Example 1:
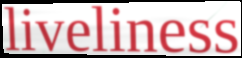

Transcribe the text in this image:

liveliness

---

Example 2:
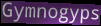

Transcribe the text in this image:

Gymnogyps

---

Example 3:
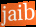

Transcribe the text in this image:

jaib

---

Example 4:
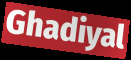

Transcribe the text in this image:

Ghadiyal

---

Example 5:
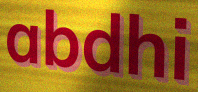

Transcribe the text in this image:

abdhi